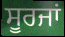
ਸੂਰਜਾਂ